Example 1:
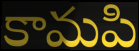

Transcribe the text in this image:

కామపి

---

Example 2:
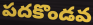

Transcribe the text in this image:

పదకొండవ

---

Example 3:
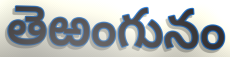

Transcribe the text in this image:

తెఱంగునం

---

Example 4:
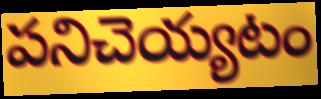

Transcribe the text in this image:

పనిచెయ్యటం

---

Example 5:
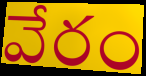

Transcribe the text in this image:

వేరం